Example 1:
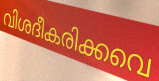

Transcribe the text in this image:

വിശദീകരിക്കവെ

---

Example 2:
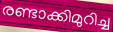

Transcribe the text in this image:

രണ്ടാക്കിമുറിച്ച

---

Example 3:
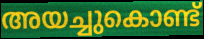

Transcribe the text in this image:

അയച്ചുകൊണ്ട്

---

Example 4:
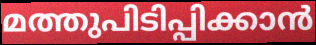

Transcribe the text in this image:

മത്തുപിടിപ്പിക്കാൻ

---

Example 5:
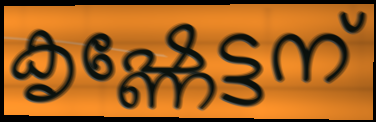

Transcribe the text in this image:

കൃഷ്ണേട്ടന്